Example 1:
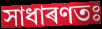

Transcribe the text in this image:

সাধাৰণতঃ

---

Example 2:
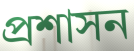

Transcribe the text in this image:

প্ৰশাসন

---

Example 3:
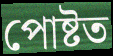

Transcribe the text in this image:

পোষ্টত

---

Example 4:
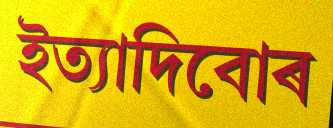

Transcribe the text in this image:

ইত্যাদিবোৰ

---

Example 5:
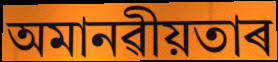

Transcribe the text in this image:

অমানৱীয়তাৰ